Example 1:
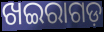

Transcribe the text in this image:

ଖଇରାଗଡ଼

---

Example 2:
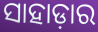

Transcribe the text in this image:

ସାହାଡ଼ାର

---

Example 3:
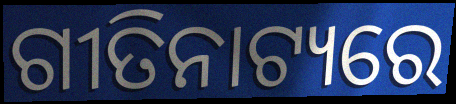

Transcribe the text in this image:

ଗୀତିନାଟ୍ୟରେ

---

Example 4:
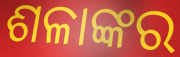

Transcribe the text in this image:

ଶଳାଙ୍କର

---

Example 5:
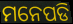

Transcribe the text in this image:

ମନେପଡି